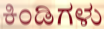
ಕಿಂಡಿಗಳು